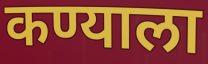
कण्याला